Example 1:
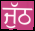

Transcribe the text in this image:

ਜੁੱਠ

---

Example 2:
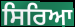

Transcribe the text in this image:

ਸਿਰਿਆ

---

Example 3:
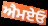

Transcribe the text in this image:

ਐਮਏਓ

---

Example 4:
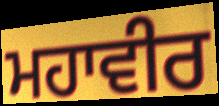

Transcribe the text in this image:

ਮਹਾਵੀਰ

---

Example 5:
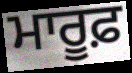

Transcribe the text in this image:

ਮਾਰੂਫ਼